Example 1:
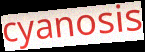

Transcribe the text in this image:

cyanosis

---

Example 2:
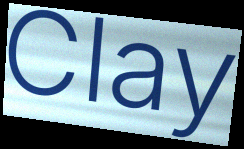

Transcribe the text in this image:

Clay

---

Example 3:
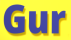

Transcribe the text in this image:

Gur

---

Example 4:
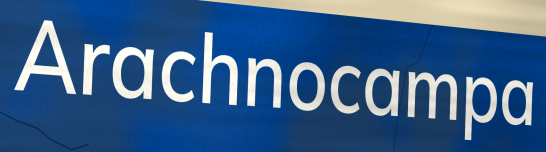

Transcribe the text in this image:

Arachnocampa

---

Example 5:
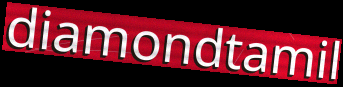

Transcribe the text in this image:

diamondtamil